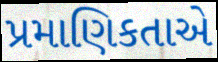
પ્રમાણિકતાએ